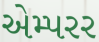
એમ્પરર